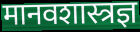
मानवशास्त्रज्ञ